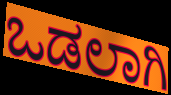
ಒಡಲಾಗಿ